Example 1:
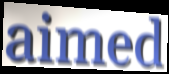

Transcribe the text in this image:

aimed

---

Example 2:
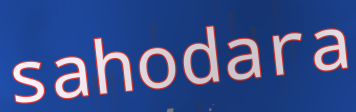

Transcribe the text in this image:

sahodara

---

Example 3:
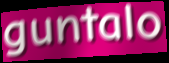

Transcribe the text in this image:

guntalo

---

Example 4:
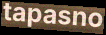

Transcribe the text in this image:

tapasno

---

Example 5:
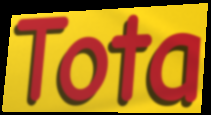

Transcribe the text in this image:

Tota